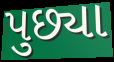
પુછ્યા